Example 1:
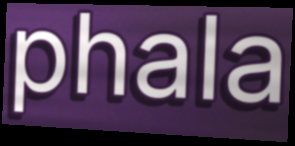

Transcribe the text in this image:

phala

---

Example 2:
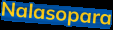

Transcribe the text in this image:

Nalasopara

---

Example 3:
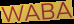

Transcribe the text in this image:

WABA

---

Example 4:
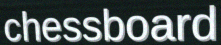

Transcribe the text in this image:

chessboard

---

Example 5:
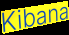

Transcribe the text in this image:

Kibana